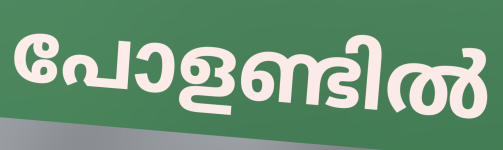
പോളണ്ടിൽ